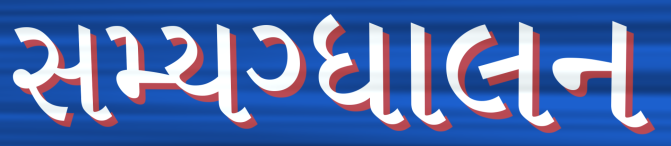
સમ્યગ્ધાલન